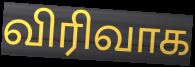
விரிவாக